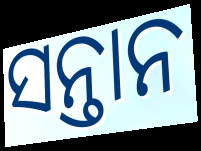
ସନ୍ତାନ